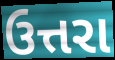
ઉત્તરા